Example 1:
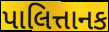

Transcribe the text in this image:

પાલિત્તાનક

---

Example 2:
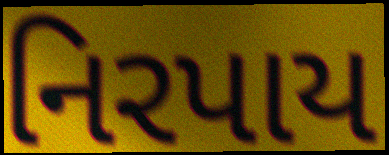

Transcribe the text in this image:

નિરપાય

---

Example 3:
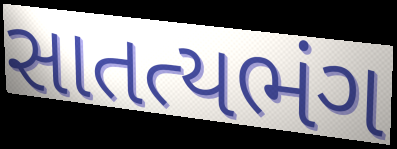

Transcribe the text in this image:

સાતત્યભંગ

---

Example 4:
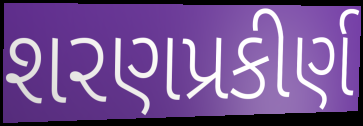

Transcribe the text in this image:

શરણપ્રકીર્ણ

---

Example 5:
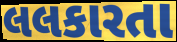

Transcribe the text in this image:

લલકારતા